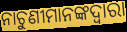
ନାଚୁଣୀମାନଙ୍କଦ୍ୱାରା